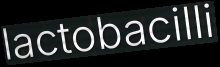
lactobacilli